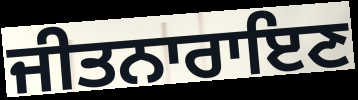
ਜੀਤਨਾਰਾਇਣ